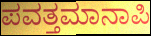
ಪವತ್ತಮಾನಾಪಿ